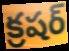
క్రషర్